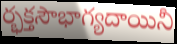
ర్భక్తసౌభాగ్యదాయినీ